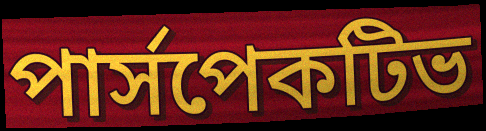
পার্সপেকটিভ